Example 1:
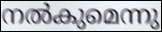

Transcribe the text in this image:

നൽകുമെന്നു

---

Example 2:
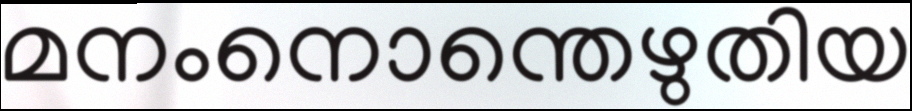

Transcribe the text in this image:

മനംനൊന്തെഴുതിയ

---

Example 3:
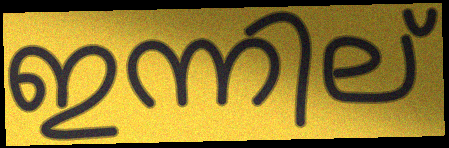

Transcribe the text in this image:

ഇന്നില്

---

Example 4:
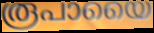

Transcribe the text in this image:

രൂപായൈ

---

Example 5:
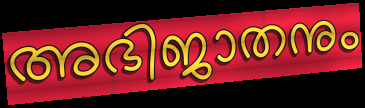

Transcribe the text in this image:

അഭിജാതനും